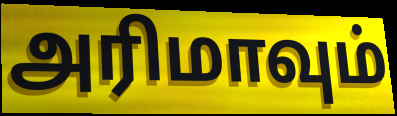
அரிமாவும்